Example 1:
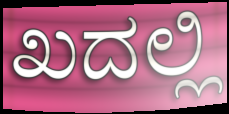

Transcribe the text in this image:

ಖದಲ್ಲಿ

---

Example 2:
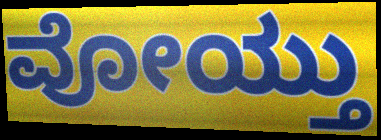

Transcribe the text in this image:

ವೋಯ್ತು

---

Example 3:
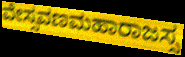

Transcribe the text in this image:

ವೇಸ್ಸವಣಮಹಾರಾಜಸ್ಸ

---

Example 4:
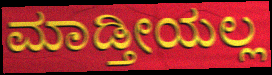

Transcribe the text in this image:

ಮಾಡ್ತೀಯಲ್ಲ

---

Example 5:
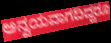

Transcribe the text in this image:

ಅನ್ವಯವಾಗದಿದ್ದರೂ